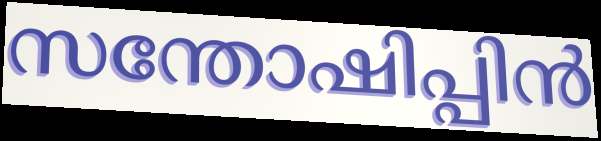
സന്തോഷിപ്പിൻ